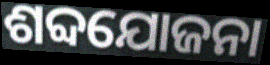
ଶବ୍ଦଯୋଜନା